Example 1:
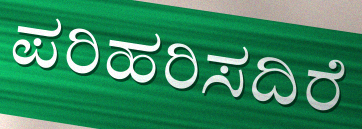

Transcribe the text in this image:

ಪರಿಹರಿಸದಿರೆ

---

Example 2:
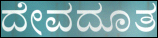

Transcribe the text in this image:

ದೇವದೂತ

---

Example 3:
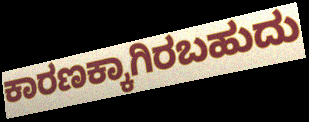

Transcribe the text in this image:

ಕಾರಣಕ್ಕಾಗಿರಬಹುದು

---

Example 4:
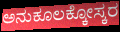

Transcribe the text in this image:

ಅನುಕೂಲಕ್ಕೋಸ್ಕರ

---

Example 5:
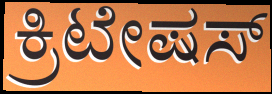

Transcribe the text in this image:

ಕ್ರಿಟೇಷಸ್